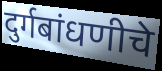
दुर्गबांधणीचे